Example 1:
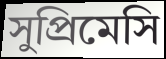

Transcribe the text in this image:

সুপ্রিমেসি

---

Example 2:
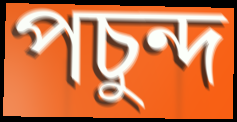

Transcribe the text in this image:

পচুন্দ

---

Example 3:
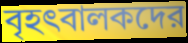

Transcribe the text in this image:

বৃহৎবালকদের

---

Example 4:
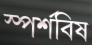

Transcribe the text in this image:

স্পর্শবিষ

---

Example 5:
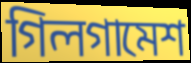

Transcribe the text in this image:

গিলগামেশ